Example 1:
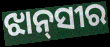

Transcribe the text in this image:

ଝାନ୍‌ସୀର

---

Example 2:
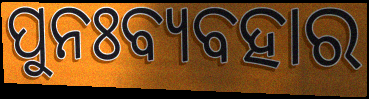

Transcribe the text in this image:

ପୁନଃବ୍ୟବହାର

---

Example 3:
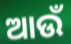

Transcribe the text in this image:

ଆଉଁ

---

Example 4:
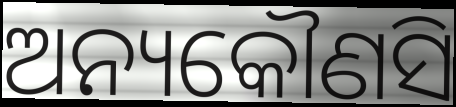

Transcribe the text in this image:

ଅନ୍ୟକୌଣସି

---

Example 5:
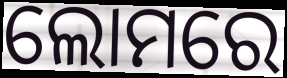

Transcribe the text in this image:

ଲୋମରେ